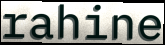
rahine